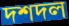
দশদল